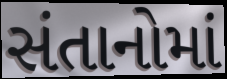
સંતાનોમાં